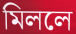
মিললে